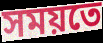
সময়তে